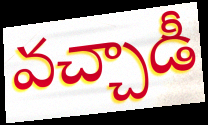
వచ్చాడీ